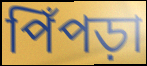
পিঁপড়া